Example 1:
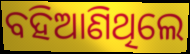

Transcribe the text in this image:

ବହିଆଣିଥିଲେ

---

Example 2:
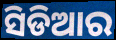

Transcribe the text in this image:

ସିଡିଆର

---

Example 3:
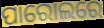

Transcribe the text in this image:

ପାରୋଲରେ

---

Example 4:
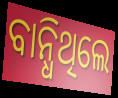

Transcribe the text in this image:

ବାନ୍ଧିଥିଲେ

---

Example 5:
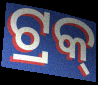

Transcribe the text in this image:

ଟ୍ରକ୍